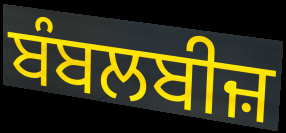
ਬੰਬਲਬੀਜ਼